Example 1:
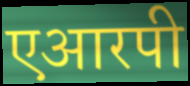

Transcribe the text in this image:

एआरपी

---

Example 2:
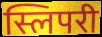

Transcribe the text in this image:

स्लिपरी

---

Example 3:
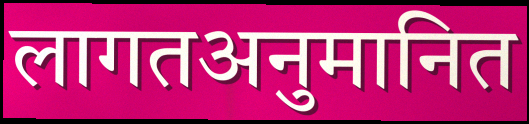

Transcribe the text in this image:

लागतअनुमानित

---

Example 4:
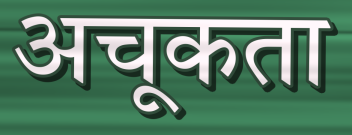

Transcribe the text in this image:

अचूकता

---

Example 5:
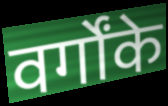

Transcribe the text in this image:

वर्गोंके